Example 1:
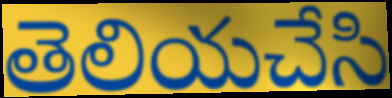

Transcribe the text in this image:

తెలియచేసి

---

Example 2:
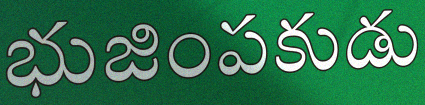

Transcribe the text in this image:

భుజింపకుడు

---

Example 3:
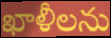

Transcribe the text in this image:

ఖాళీలను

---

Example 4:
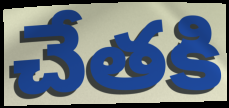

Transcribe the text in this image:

చేతకి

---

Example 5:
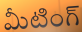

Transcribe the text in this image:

మీటింగ్